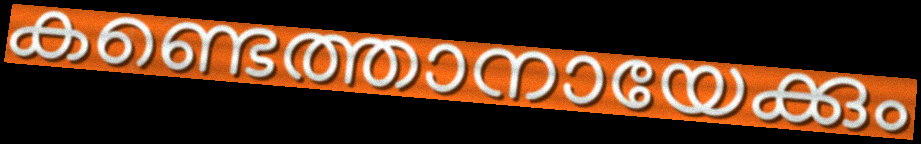
കണ്ടെത്താനായേക്കും